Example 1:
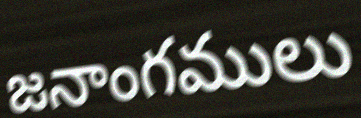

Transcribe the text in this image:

జనాంగములు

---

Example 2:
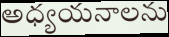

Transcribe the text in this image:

అధ్యయనాలను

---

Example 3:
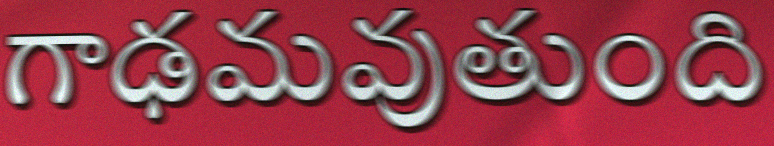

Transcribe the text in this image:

గాఢమవుతుంది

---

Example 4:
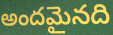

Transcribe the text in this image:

అందమైనది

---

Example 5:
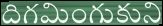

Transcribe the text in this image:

దిగమింగుకుని